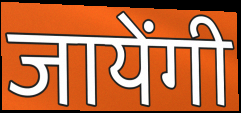
जायेंगी